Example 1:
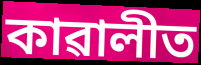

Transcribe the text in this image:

কাৱালীত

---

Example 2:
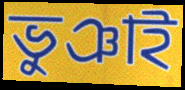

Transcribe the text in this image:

ভুঞাই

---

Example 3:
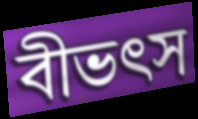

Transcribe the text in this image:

বীভৎস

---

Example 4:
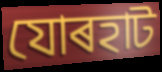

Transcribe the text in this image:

যোৰহাট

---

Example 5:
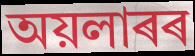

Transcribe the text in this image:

অয়লাৰৰ